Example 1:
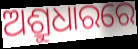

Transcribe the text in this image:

ଅଶ୍ରୁଧାରରେ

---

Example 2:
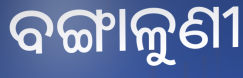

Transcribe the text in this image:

ବଙ୍ଗାଳୁଣୀ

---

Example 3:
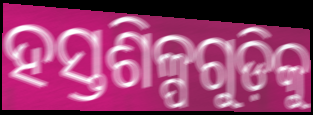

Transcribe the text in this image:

ହସ୍ତଶିଳ୍ପଗୁଡ଼ିକୁ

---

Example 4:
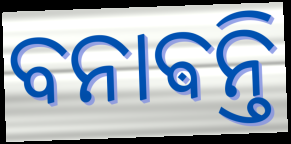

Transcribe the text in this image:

ବନାଵନ୍ତି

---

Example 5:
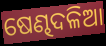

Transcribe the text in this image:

ଷେଣ୍ଢଦଳିଆ